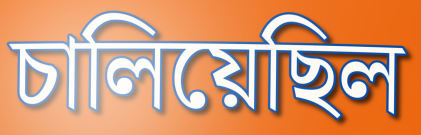
চালিয়েছিল